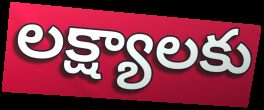
లక్ష్యాలకు